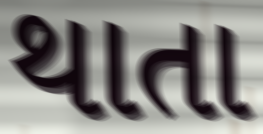
થાતા